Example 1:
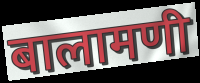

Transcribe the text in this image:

बालामणी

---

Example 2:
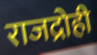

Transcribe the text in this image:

राजद्रोही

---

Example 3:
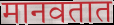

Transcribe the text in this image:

मानवतात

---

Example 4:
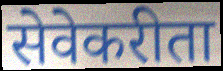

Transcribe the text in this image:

सेवेकरीता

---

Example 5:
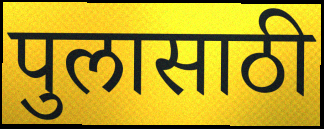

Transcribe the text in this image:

पुलासाठी